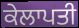
ਕੇਲਾਪਤੀ